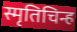
स्मृतिचिन्ह